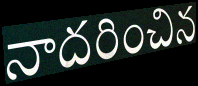
నాదరించిన